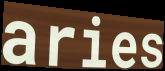
aries